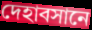
দেহাবসানে